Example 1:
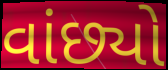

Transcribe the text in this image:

વાંછ્યો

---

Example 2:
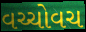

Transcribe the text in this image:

વચ્ચોવચ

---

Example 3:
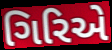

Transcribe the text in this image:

ગિરિએ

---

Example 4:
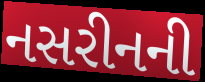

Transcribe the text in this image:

નસરીનની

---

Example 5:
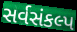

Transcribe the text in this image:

સર્વસંકલ્પ